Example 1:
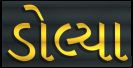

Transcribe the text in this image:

ડોલ્યા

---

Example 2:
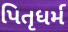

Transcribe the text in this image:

પિતૃધર્મ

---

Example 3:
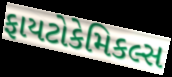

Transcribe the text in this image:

ફાયટોકેમિકલ્સ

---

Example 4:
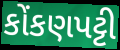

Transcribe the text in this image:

કોંકણપટ્ટી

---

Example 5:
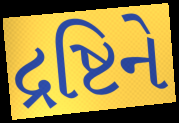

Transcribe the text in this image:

દ્રષ્ટિને